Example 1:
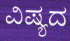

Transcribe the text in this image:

ವಿಷ್ಯದ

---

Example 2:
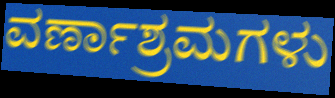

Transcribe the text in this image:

ವರ್ಣಾಶ್ರಮಗಳು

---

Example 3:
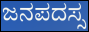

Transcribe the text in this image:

ಜನಪದಸ್ಸ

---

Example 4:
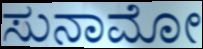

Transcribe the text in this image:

ಸುನಾಮೋ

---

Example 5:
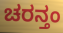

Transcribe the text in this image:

ಚರನ್ತಂ